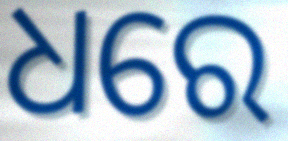
ଧରେ